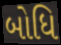
બોધિ